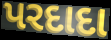
પરદાદા